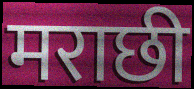
मराछी